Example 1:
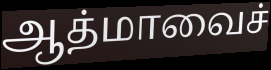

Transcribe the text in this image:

ஆத்மாவைச்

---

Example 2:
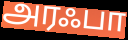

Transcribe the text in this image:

அரஃபா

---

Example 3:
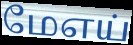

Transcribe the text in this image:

மேஎய்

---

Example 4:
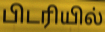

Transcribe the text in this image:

பிடரியில்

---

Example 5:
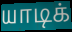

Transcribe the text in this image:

யாடிக்